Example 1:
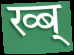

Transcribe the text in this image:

ख्ब्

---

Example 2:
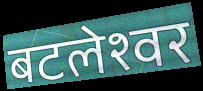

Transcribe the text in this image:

बटलेश्वर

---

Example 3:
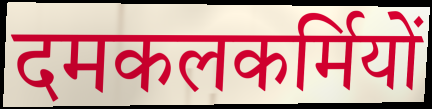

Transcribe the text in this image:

दमकलकर्मियों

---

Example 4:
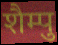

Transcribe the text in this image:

शैम्पु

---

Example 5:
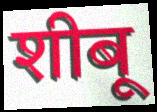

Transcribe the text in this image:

शीबू